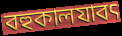
বহুকালযাবৎ